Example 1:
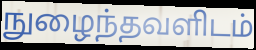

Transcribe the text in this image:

நுழைந்தவளிடம்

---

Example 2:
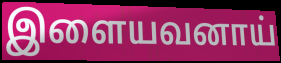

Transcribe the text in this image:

இளையவனாய்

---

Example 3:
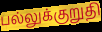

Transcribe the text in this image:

பல்லுக்குறுதி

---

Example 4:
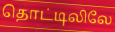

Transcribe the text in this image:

தொட்டிலிலே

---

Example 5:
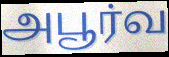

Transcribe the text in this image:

அபூர்வ